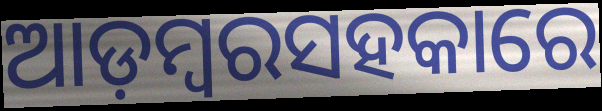
ଆଡ଼ମ୍ବରସହକାରେ